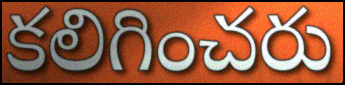
కలిగించరు